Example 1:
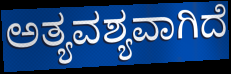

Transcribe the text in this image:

ಅತ್ಯವಶ್ಯವಾಗಿದೆ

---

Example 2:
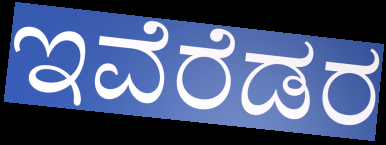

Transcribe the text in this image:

ಇವೆರೆಡರ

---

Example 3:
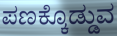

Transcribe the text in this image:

ಪಣಕ್ಕೊಡ್ಡುವ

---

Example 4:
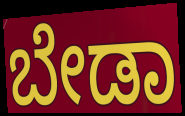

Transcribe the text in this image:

ಬೇಡಾ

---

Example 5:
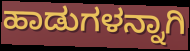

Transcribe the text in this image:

ಹಾಡುಗಳನ್ನಾಗಿ